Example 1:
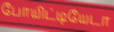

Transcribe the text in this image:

போயிட்டியேடா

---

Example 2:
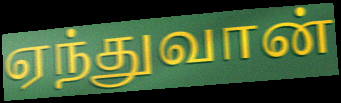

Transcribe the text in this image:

ஏந்துவான்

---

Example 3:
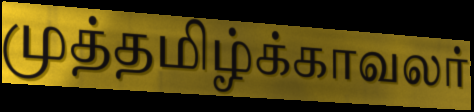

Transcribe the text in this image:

முத்தமிழ்க்காவலர்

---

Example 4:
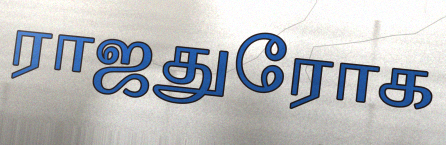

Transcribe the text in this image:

ராஜதுரோக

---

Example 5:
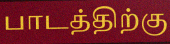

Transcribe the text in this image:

பாடத்திற்கு